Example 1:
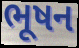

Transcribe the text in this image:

ભૂષન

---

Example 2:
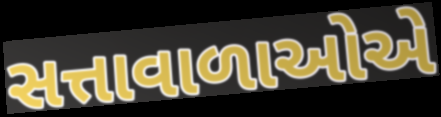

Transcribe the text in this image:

સત્તાવાળાઓએ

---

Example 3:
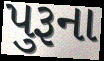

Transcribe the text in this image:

પુરૂના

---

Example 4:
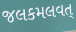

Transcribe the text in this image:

જલકમલવત્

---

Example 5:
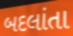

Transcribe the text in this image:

બદલાંતા